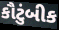
કૌટુંબીક